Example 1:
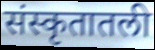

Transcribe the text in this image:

संस्कृतातली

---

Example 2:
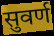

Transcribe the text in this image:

सुवर्ण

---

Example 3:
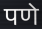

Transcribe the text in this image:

पणे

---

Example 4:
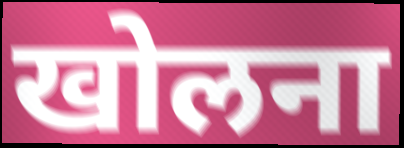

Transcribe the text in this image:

खोलना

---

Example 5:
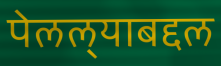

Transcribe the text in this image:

पेलल्याबद्दल